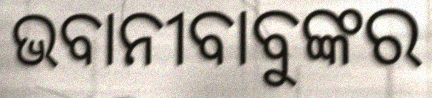
ଭବାନୀବାବୁଙ୍କର